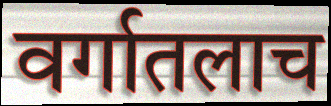
वर्गातलाच